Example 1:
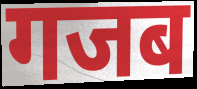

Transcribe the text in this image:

गजब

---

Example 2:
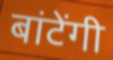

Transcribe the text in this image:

बांटेंगी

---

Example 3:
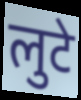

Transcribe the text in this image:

लुटे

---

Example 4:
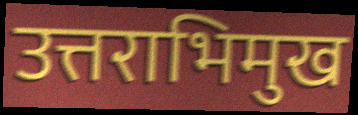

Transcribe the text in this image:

उत्तराभिमुख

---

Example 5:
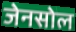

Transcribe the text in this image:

जेनसोल